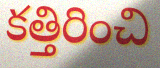
కత్తిరించి